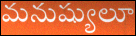
మనుష్యులూ